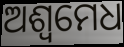
ଅଶ୍ବମେଧ